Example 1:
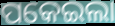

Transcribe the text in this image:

ପକେଇଲା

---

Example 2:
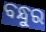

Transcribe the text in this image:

ବନ୍ଧୁର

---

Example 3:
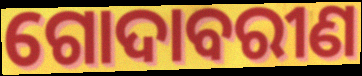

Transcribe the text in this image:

ଗୋଦାବରୀଣ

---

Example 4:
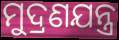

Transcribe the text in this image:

ମୁଦ୍ରଣଯନ୍ତ୍ର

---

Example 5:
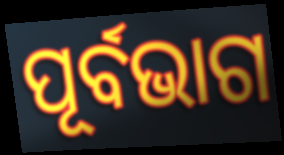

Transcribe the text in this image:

ପୂର୍ବଭାଗ